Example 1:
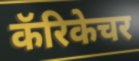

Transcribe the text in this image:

कॅरिकेचर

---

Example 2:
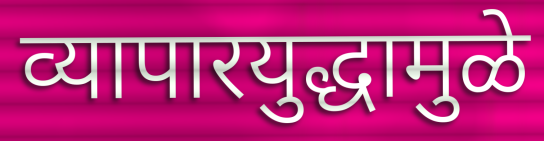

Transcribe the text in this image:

व्यापारयुद्धामुळे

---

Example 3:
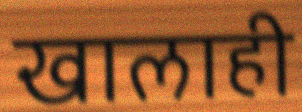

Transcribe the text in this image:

खालाही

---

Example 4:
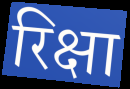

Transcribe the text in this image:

रिक्षा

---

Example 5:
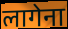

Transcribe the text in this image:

लागेना